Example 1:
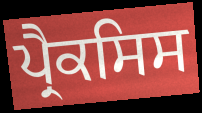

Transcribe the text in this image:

ਪ੍ਰੈਕਸਿਸ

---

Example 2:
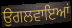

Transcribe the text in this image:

ਉਗਲਵਾਇਆਂ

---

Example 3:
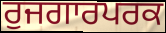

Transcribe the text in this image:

ਰੁਜਗਾਰਪਰਕ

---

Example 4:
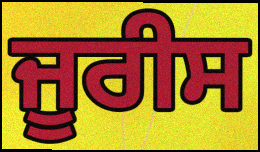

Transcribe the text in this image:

ਜੂਰੀਸ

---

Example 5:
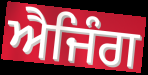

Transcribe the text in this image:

ਐਜਿੰਗ